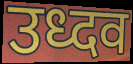
उध्दव